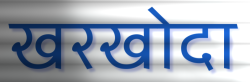
खरखोदा